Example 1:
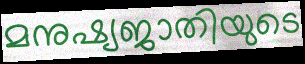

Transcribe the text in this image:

മനുഷ്യജാതിയുടെ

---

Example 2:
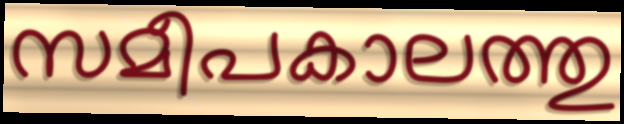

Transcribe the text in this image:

സമീപകാലത്തു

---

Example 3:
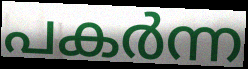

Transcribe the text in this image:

പകർന്ന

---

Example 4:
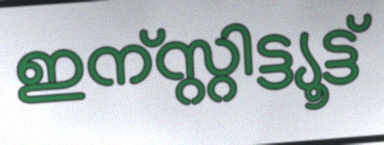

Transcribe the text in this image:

ഇന്സ്റ്റിട്ട്യൂട്ട്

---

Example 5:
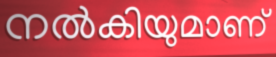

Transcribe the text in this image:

നൽകിയുമാണ്